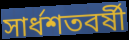
সার্ধশতবর্ষী